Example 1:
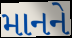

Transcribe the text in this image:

માનને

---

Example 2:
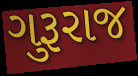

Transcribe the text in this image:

ગુરૂરાજ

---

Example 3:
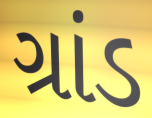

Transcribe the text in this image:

ગ્રાંડ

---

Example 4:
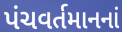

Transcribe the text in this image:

પંચવર્તમાનનાં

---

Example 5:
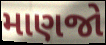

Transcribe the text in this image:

માણજો